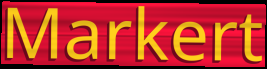
Markert